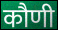
कौणी